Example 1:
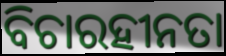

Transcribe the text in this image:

ବିଚାରହୀନତା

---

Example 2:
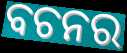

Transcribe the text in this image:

ବଚନର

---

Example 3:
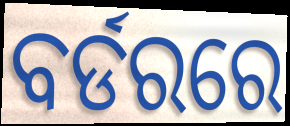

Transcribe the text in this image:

ବର୍ଡରରେ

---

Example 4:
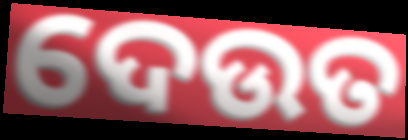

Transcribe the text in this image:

ଦେଉତ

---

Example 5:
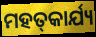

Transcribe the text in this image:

ମହତ୍‌କାର୍ଯ୍ୟ